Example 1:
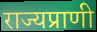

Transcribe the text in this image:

राज्यप्राणी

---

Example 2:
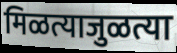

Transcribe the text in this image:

मिळत्याजुळत्या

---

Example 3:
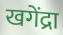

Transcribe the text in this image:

खगेंद्रा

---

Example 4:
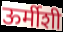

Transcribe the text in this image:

ऊर्मीशी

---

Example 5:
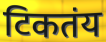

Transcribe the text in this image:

टिकतंय